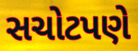
સચોટપણે